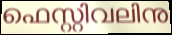
ഫെസ്റ്റിവലിനു